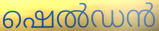
ഷെൽഡൻ